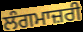
ਲੰਗਮਾਜ਼ਰੀ